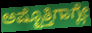
ಅಷ್ಟೊತ್ತಿಗಾಗ್ಲೇ